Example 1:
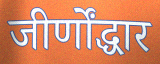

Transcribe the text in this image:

जीर्णोंद्धार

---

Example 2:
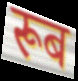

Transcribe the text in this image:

रूब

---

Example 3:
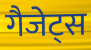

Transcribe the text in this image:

गैजेट्स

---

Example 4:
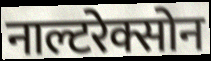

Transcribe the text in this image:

नाल्टरेक्सोन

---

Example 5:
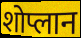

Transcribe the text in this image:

शोप्लान